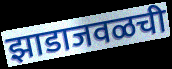
झाडाजवळची